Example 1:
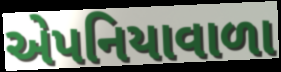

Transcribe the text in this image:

એપનિયાવાળા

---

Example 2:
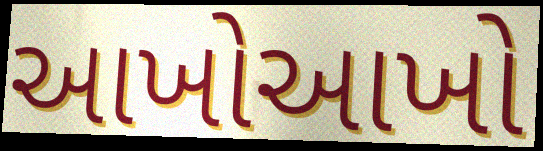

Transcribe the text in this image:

આખોઆખો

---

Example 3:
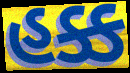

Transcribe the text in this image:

હક્ક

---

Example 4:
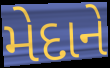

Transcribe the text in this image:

મેદાને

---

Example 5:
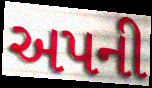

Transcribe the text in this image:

અપની